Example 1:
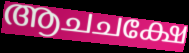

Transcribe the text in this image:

ആചചക്ഷേ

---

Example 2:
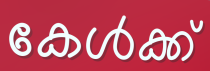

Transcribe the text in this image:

കേൾക്ക്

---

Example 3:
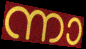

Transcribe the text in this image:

ന്നാ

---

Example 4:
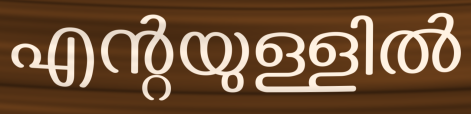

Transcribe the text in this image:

എന്റയുള്ളിൽ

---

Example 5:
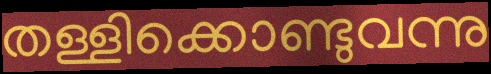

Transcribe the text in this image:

തള്ളിക്കൊണ്ടുവന്നു